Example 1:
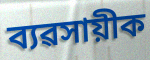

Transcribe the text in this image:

ব্যৱসায়ীক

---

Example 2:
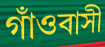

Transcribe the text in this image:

গাঁওবাসী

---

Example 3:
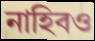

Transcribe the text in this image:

নাহিবও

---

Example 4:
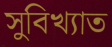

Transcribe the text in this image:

সুবিখ্যাত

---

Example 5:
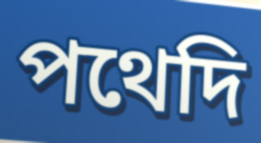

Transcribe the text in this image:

পথেদি